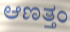
ಆಣತ್ತಂ